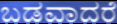
ಬಡವಾದರೆ